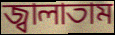
জ্বালাতাম